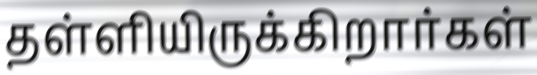
தள்ளியிருக்கிறார்கள்